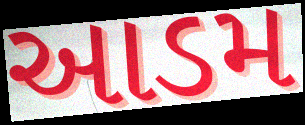
આડમ